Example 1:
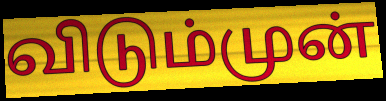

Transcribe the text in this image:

விடும்முன்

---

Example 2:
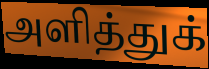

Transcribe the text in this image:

அளித்துக்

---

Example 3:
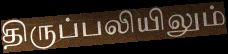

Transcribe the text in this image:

திருப்பலியிலும்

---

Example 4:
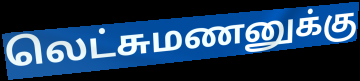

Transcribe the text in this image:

லெட்சுமணனுக்கு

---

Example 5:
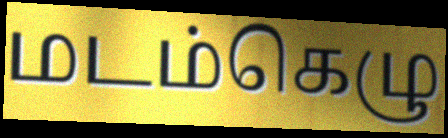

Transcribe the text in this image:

மடம்கெழு